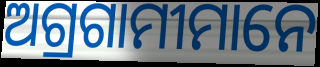
ଅଗ୍ରଗାମୀମାନେ